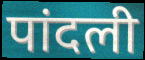
पांदली